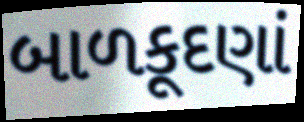
બાળકૂદણાં